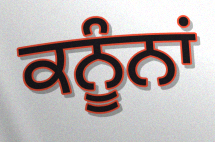
ਕਨੂੰਨਾਂ